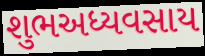
શુભઅધ્યવસાય